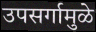
उपसर्गामुळे